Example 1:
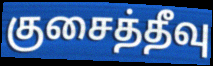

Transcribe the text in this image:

குசைத்தீவு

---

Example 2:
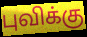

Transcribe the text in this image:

புவிக்கு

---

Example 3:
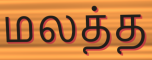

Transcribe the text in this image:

மலத்த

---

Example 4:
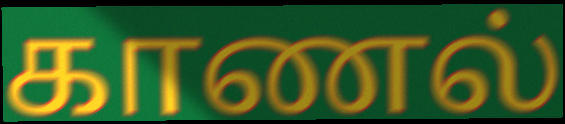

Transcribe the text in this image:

காணல்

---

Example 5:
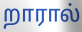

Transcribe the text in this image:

றாரால்